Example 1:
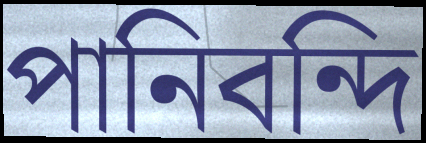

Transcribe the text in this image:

পানিবন্দি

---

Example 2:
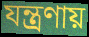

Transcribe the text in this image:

যন্ত্রণায়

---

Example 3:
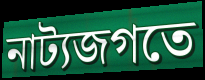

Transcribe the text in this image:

নাট্যজগতে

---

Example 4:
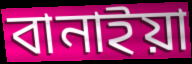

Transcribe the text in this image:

বানাইয়া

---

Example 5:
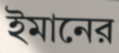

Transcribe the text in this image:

ইমানের